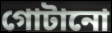
গোটানো